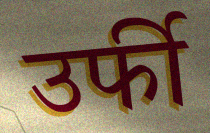
उर्फी